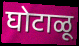
घोटाळू